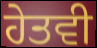
ਹੇਤਵੀ